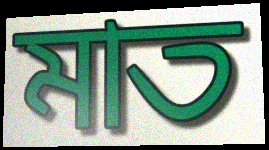
মাত